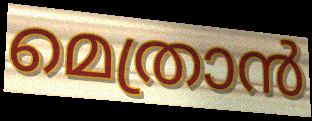
മെത്രാൻ